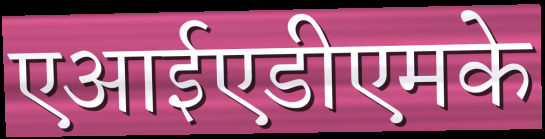
एआईएडीएमके